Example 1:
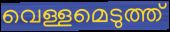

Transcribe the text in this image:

വെള്ളമെടുത്ത്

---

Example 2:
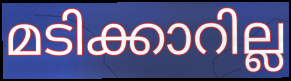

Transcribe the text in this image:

മടിക്കാറില്ല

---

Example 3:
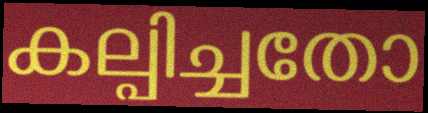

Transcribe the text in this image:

കല്പിച്ചതോ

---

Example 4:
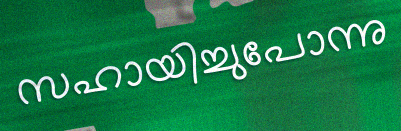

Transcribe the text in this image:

സഹായിച്ചുപോന്നു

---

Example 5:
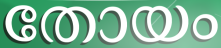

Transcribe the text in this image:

തോയം